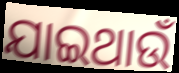
ଯାଇଥାଉଁ